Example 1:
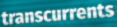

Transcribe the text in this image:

transcurrents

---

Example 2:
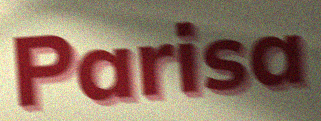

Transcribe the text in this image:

Parisa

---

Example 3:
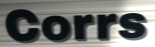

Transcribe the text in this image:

Corrs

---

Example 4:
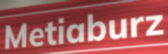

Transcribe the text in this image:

Metiaburz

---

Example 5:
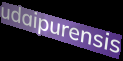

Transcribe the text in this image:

udaipurensis